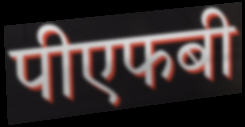
पीएफबी